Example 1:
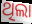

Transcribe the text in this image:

ଥିଲା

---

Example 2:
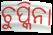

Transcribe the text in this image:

ଚୁପ୍କିନା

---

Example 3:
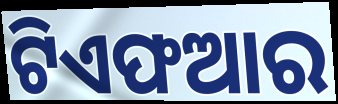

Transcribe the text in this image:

ଟିଏଫଆର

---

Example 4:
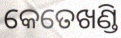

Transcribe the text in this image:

କେତେଖଣ୍ଡି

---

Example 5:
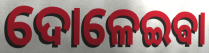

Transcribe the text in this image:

ଦୋଳେଇଵା